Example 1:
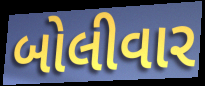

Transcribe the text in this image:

બોલીવાર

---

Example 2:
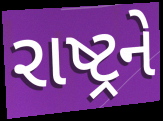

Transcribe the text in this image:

રાષ્ટ્રને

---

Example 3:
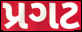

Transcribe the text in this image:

પ્રગટ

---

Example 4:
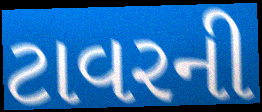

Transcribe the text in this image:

ટાવરની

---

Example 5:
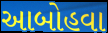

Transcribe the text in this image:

આબોહવા